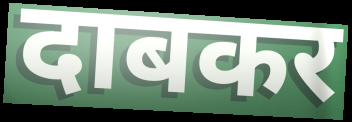
दाबकर